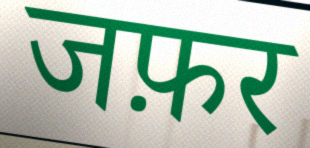
जफ़र